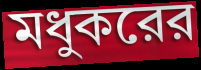
মধুকরের